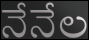
నేనేల